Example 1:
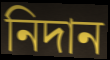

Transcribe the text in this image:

নিদান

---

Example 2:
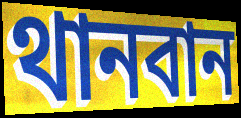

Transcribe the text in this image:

থানবান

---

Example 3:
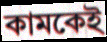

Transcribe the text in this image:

কামকেই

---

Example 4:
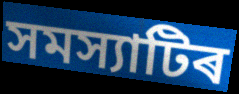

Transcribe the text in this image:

সমস্যাটিৰ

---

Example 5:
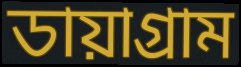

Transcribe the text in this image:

ডায়াগ্ৰাম